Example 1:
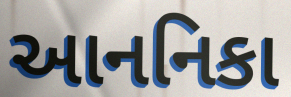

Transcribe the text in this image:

આનનિકા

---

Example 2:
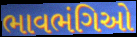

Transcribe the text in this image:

ભાવભંગિઓ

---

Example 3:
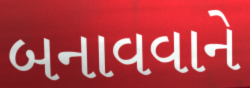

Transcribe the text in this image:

બનાવવાને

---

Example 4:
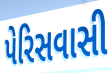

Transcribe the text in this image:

પેરિસવાસી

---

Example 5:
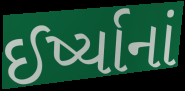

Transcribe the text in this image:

ઈર્ષ્યાનાં